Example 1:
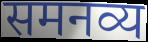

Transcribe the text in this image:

समनव्य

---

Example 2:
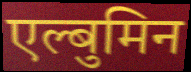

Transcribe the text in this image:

एल्बुमिन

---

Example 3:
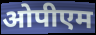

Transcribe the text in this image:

ओपीएम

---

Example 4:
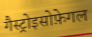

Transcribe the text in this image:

गैस्ट्रोइसोफ़ेगल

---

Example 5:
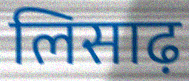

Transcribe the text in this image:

लिसाढ़